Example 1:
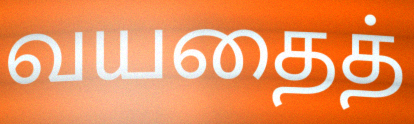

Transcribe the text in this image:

வயதைத்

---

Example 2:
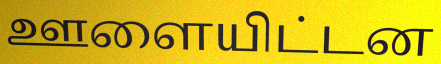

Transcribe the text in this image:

ஊளையிட்டன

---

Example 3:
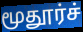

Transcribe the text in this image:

மூதூர்ச்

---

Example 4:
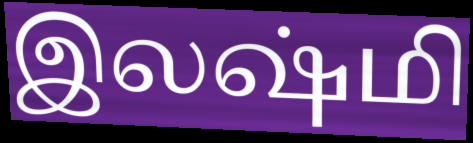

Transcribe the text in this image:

இலஷ்மி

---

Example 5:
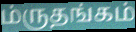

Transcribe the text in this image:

ம்ருதங்கம்